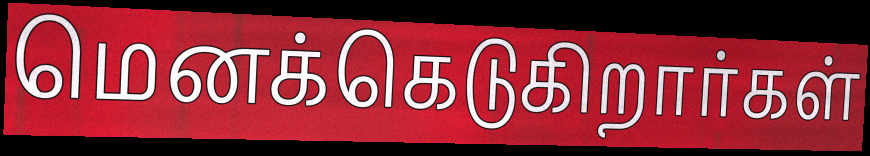
மெனக்கெடுகிறார்கள்